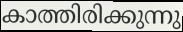
കാത്തിരിക്കുന്നു